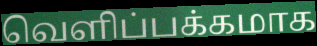
வெளிப்பக்கமாக